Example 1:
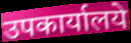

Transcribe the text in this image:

उपकार्यालये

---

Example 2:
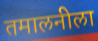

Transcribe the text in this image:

तमालनीला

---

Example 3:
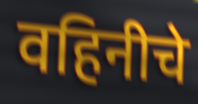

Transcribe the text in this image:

वहिनीचे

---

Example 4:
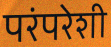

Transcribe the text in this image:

परंपरेशी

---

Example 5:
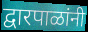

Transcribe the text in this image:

द्वारपाळांनी